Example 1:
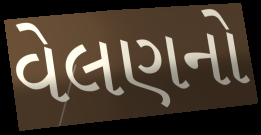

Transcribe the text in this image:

વેલણનો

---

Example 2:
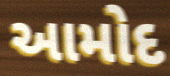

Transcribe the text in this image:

આમોદ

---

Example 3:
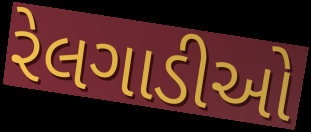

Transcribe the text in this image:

રેલગાડીઓ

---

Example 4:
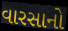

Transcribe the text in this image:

વારસાનો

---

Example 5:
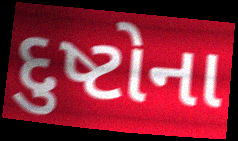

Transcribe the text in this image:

દુષ્ટોના